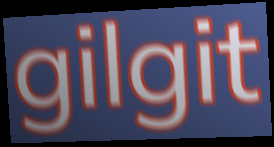
gilgit